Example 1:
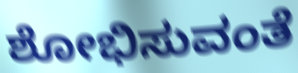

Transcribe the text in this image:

ಶೋಭಿಸುವಂತೆ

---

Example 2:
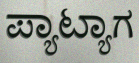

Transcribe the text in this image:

ಪ್ಯಾಟ್ಯಾಗ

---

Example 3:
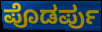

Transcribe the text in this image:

ಪೊಡರ್ಪು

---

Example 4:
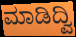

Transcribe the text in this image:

ಮಾಡಿದ್ವಿ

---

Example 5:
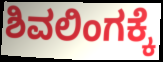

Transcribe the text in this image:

ಶಿವಲಿಂಗಕ್ಕೆ